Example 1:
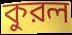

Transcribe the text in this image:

কুরল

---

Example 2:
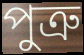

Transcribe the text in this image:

পুত্রু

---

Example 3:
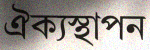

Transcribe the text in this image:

ঐক্যস্থাপন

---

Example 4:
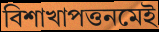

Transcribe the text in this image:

বিশাখাপত্তনমেই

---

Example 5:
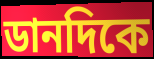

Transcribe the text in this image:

ডানদিকে